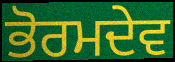
ਭੋਰਮਦੇਵ